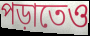
পড়াতেও